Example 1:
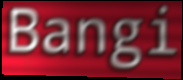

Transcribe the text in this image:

Bangi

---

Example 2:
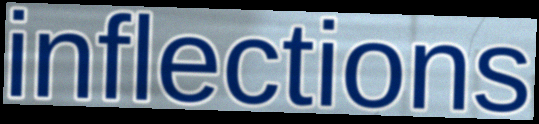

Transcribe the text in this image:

inflections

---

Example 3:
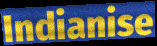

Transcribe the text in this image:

Indianise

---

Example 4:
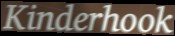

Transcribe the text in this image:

Kinderhook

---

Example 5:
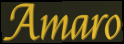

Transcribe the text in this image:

Amaro